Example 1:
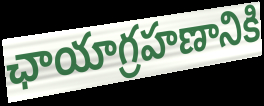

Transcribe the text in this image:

ఛాయాగ్రహణానికి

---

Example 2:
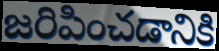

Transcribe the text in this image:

జరిపించడానికి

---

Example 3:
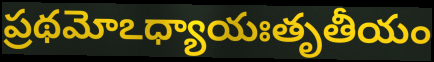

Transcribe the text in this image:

ప్రథమోఽధ్యాయఃతృతీయం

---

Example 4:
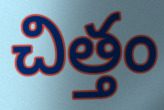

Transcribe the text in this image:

చిత్తం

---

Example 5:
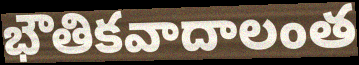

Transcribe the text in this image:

భౌతికవాదాలంత